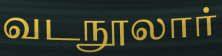
வடநூலார்